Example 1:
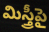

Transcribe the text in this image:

మిస్త్రీపై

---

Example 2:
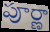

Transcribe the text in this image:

పూర్ణా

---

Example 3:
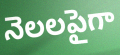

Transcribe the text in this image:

నెలలపైగా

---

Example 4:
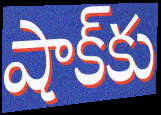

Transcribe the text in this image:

షాక్‌కు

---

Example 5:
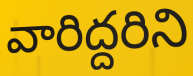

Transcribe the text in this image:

వారిద్దరిని